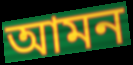
আমন